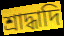
শ্রাদ্ধাদি